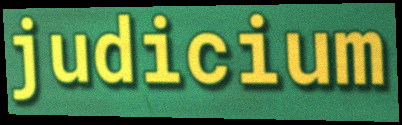
judicium